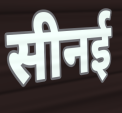
सीनई